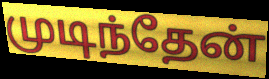
முடிந்தேன்